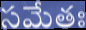
సమేతః